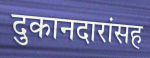
दुकानदारांसह